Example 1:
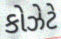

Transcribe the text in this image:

કોઝેટે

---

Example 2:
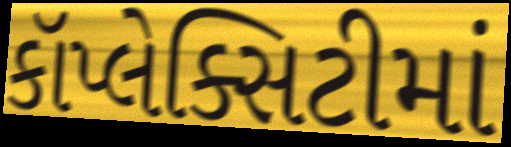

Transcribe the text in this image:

કૉપ્લેક્સિટીમાં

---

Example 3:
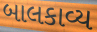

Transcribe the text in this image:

બાલકાવ્ય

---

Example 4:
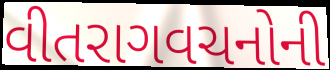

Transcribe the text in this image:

વીતરાગવચનોની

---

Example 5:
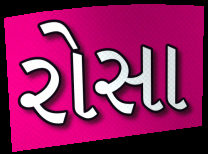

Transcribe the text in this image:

રોસા